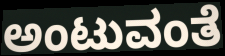
ಅಂಟುವಂತೆ